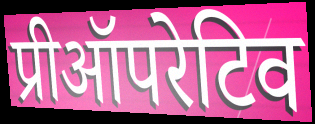
प्रीऑपरेटिव